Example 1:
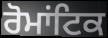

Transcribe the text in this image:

ਰੋਮਾਂਟਿਕ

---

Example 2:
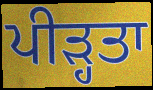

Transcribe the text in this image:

ਪੀੜ੍ਹਤਾ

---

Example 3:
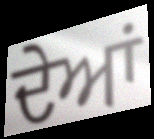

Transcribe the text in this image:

ਦੇਆਂ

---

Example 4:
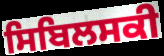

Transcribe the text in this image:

ਸਿਬਿਲਸਕੀ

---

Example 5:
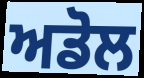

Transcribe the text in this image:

ਅਡੋਲ